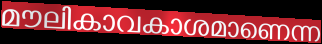
മൗലികാവകാശമാണെന്ന